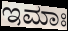
ಇಮಾಃ